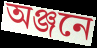
অঞ্জনে